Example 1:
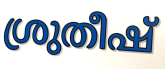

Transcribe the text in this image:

ശ്രുതീഷ്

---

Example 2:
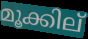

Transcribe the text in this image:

മൂക്കില്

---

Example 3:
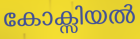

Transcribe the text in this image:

കോക്സിയൽ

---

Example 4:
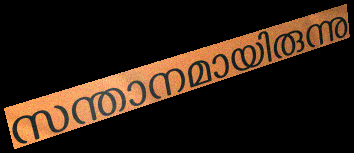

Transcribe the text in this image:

സന്താനമായിരുന്നു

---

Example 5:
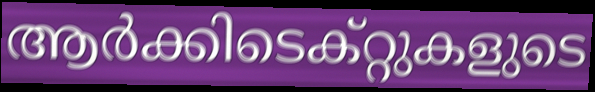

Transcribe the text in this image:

ആർക്കിടെക്റ്റുകളുടെ